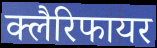
क्लैरिफायर